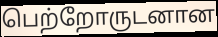
பெற்றோருடனான